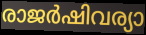
രാജർഷിവര്യാ